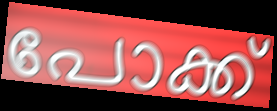
പോക്ക്